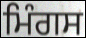
ਮਿੰਗਸ